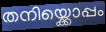
തനിയ്ക്കൊപ്പം